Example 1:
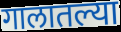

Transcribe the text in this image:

गालातल्या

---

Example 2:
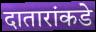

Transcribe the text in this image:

दातारांकडे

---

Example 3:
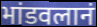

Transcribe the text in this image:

भांडवलानं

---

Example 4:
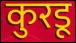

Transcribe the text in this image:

कुरडू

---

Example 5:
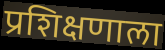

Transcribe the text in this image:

प्रशिक्षणाला